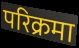
परिक्रमा